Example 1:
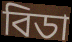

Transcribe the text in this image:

বিডা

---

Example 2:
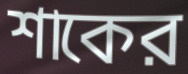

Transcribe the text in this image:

শাকের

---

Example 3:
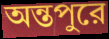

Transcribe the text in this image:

অন্তপুরে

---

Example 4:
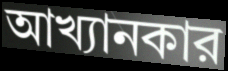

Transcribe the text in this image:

আখ্যানকার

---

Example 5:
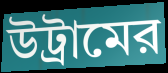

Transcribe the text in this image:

উট্রামের